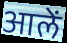
आलें